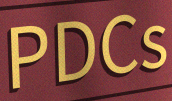
PDCs